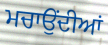
ਮਚਾਉਂਦੀਆਂ